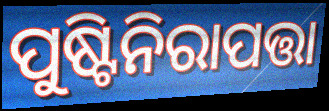
ପୁଷ୍ଟିନିରାପତ୍ତା